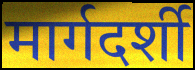
मार्गदर्शी